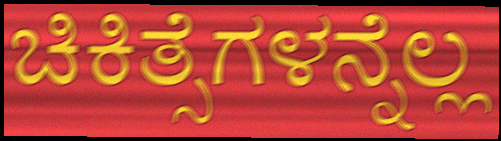
ಚಿಕಿತ್ಸೆಗಳನ್ನೆಲ್ಲ